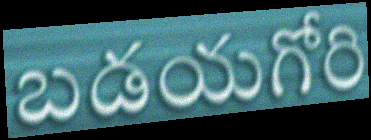
బడయగోరి